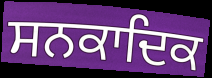
ਸਨਕਾਦਿਕ